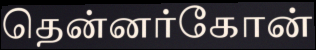
தென்னர்கோன்